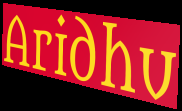
Aridhu